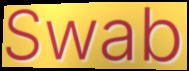
Swab